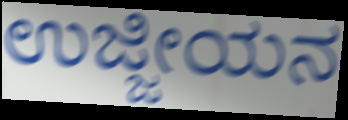
ಉಜ್ಜೀಯನ